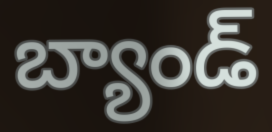
బ్యాండ్